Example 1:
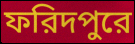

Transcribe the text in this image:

ফরিদপুরে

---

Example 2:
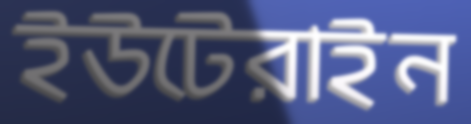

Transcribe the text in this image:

ইউটেরাইন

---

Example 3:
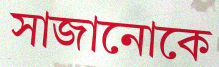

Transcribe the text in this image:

সাজানোকে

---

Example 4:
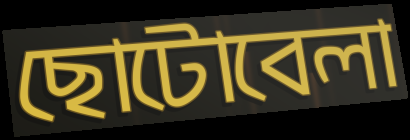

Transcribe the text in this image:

ছোটোবেলা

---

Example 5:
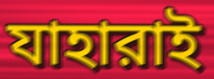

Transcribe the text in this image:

যাহারাই